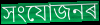
সংযোজনৰ